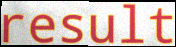
result